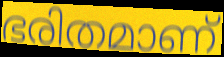
ഭരിതമാണ്